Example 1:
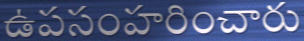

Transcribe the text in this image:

ఉపసంహరించారు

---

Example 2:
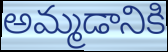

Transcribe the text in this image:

అమ్మడానికి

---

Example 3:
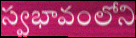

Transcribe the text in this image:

స్వభావంలోని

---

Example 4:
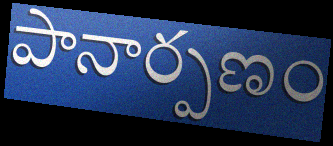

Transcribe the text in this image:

పానార్పణం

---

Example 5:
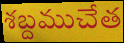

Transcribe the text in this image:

శబ్దముచేత